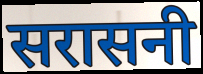
सरासनी